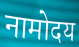
नामोदय